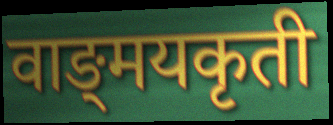
वाङ्‌मयकृती